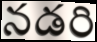
నడరి